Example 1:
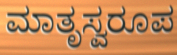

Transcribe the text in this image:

ಮಾತೃಸ್ವರೂಪ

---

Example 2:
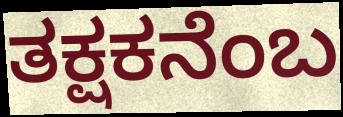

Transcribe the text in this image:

ತಕ್ಷಕನೆಂಬ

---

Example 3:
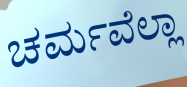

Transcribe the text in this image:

ಚರ್ಮವೆಲ್ಲಾ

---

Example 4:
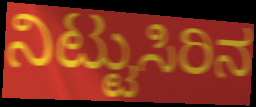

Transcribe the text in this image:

ನಿಟ್ಟುಸಿರಿನ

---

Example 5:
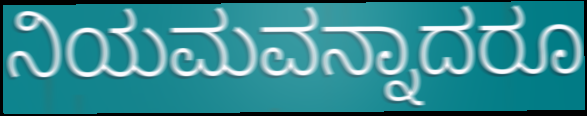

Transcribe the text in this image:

ನಿಯಮವನ್ನಾದರೂ